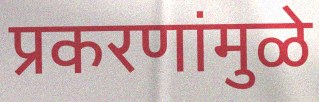
प्रकरणांमुळे